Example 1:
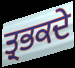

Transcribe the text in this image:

ਤ੍ਰਭਕਦੇ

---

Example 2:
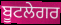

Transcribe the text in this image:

ਬੂਟਲੇਗਰ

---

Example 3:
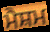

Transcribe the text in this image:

ਮੈਸ਼ਮ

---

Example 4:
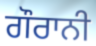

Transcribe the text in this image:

ਗੌਰਾਨੀ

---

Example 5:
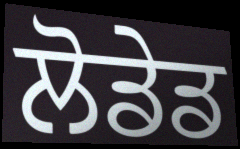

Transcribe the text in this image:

ਲੋਡੇਡ